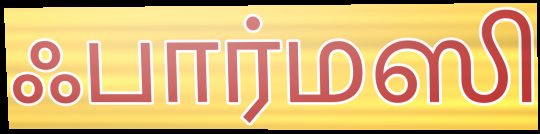
ஃபார்மஸி